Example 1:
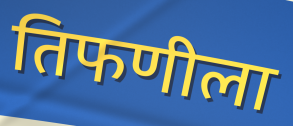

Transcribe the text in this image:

तिफणीला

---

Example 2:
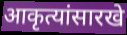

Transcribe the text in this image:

आकृत्यांसारखे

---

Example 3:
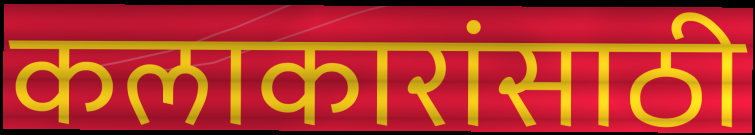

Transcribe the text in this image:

कलाकारांसाठी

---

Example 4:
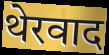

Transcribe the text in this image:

थेरवाद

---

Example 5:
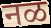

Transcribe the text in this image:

नळ